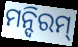
ମନ୍ଦିରମ୍